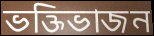
ভক্তিভাজন